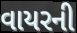
વાયરની